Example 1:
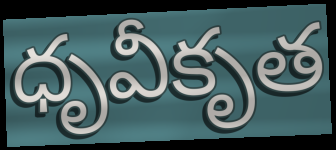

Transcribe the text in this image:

ధృవీకృత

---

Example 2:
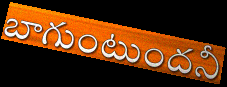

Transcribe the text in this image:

బాగుంటుందనీ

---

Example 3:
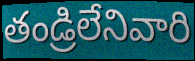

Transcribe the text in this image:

తండ్రిలేనివారి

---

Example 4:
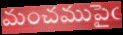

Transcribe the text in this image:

మంచముపైఁ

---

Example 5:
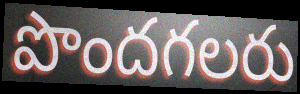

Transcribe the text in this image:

పొందగలరు